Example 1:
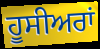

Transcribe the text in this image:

ਹੂਸੀਅਰਾਂ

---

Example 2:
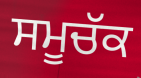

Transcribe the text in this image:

ਸਮੂਚੱਕ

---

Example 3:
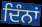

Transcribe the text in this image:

ਦਿੰਨਾਂ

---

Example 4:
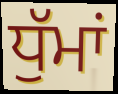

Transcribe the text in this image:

ਧੁੱਮਾਂ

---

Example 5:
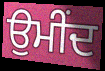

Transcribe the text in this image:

ਉਮੀਂਦ